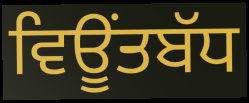
ਵਿਊਂਤਬੱਧ